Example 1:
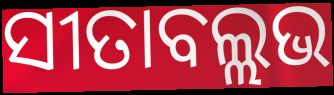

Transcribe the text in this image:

ସୀତାବଲ୍ଲଭ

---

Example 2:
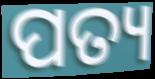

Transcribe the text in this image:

ପତ୍ୟ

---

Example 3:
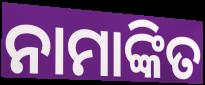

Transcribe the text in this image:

ନାମାଙ୍କିତ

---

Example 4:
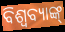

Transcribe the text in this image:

ବିଶ୍ବବ୍ୟାଙ୍କ୍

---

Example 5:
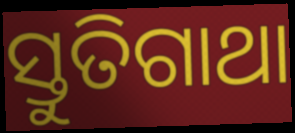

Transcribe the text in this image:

ସ୍ତୁତିଗାଥା